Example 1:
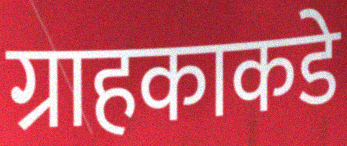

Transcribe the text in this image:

ग्राहकाकडे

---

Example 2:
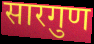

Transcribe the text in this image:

सारगुण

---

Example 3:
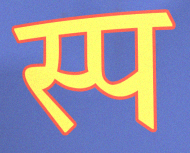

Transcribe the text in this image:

स्प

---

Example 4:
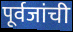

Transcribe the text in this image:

पूर्वजांची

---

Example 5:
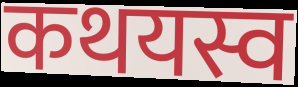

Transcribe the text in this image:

कथयस्व